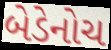
બેડેનોચ